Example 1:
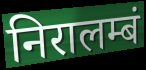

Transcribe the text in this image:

निरालम्बं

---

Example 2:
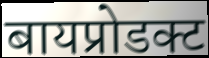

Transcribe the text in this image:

बायप्रोडक्ट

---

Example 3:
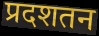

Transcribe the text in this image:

प्रदशतन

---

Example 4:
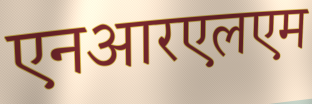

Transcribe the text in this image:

एनआरएलएम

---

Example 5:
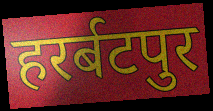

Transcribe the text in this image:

हरर्बटपुर